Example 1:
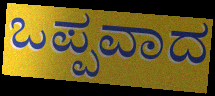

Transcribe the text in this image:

ಒಪ್ಪವಾದ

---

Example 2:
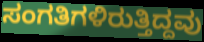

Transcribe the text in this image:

ಸಂಗತಿಗಳಿರುತ್ತಿದ್ದವು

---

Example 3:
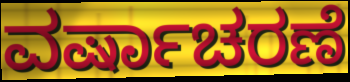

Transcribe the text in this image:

ವರ್ಷಾಚರಣೆ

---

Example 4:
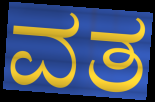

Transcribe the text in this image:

ವತ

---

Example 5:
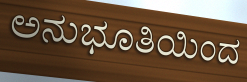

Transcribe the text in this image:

ಅನುಭೂತಿಯಿಂದ